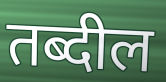
तब्‍दील